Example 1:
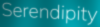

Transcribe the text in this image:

Serendipity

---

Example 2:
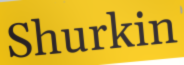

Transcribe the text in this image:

Shurkin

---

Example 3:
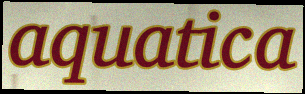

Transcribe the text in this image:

aquatica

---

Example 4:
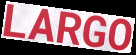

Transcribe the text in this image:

LARGO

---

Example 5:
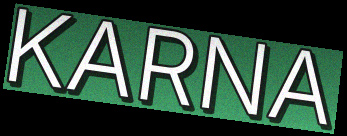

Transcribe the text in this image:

KARNA